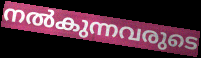
നൽകുന്നവരുടെ